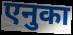
एनुका